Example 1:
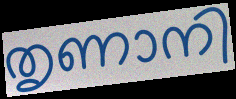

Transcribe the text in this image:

തൃണാനി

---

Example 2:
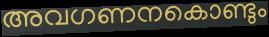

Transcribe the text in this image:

അവഗണനകൊണ്ടും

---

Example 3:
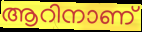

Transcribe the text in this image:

ആറിനാണ്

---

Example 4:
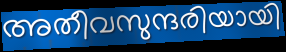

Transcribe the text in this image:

അതീവസുന്ദരിയായി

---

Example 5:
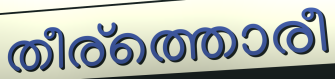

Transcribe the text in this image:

തീര്ത്തൊരീ